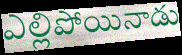
ఎల్లిపోయినాడు